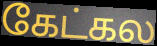
கேட்கல